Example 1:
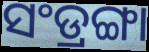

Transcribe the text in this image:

ସଂଡ୍ରଙ୍ଗା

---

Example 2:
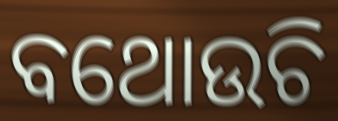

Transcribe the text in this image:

ବଥୋଉଚି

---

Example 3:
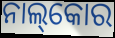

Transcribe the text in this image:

ନାଲ୍‌କୋର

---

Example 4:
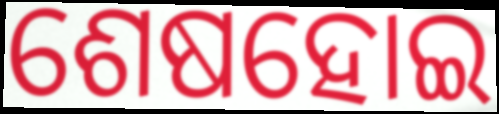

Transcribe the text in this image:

ଶେଷହୋଇ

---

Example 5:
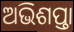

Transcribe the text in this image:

ଅଭିଶପ୍ତା